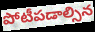
పోటీపడాల్సిన